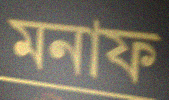
মনাফ